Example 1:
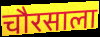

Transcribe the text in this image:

चौरसाला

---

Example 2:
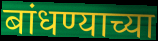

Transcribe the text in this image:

बांधण्याच्या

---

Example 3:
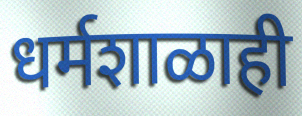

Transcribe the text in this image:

धर्मशाळाही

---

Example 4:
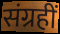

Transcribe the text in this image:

संग्रहीं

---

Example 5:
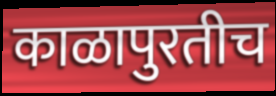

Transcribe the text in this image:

काळापुरतीच